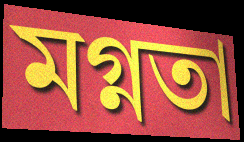
মগ্নতা